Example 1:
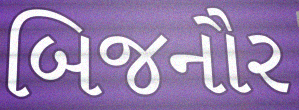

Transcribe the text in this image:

બિજનૌર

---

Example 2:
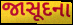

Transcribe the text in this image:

જાસૂદના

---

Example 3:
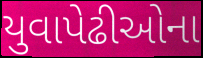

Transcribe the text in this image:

યુવાપેઢીઓના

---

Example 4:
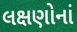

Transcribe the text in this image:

લક્ષણોનાં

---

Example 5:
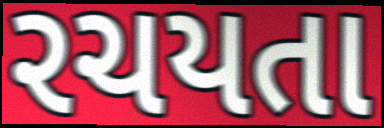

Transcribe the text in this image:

રચયતા